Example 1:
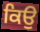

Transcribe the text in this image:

ਕਿਉ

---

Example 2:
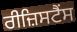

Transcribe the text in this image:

ਰੀਜ਼ਿਸਟੈਂਸ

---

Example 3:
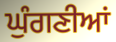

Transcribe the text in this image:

ਘੁੰਗਣੀਆਂ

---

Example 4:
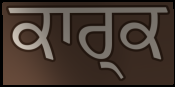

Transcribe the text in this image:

ਕਾਰ੍ਕ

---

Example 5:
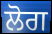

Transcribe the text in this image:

ਲੋਗ